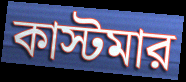
কাস্টমার